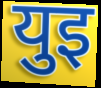
युइ